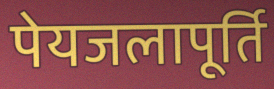
पेयजलापूर्ति